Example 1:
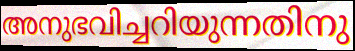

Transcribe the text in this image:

അനുഭവിച്ചറിയുന്നതിനു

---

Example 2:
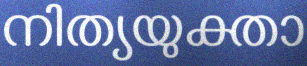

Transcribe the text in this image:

നിത്യയുക്താ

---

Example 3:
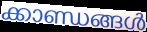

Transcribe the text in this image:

ക്കാണ്ഡങ്ങൾ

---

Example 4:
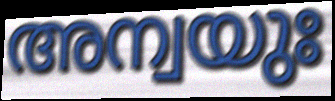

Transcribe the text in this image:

അന്വയുഃ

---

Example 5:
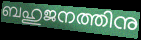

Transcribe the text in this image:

ബഹുജനത്തിനു